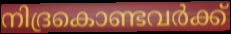
നിദ്രകൊണ്ടവർക്ക്